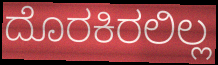
ದೊರಕಿರಲಿಲ್ಲ